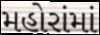
મહોરાંમાં